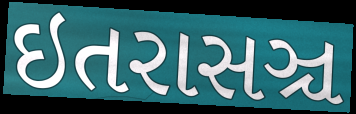
ઇતરાસઞ્ચ